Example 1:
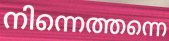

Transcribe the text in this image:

നിന്നെത്തന്നെ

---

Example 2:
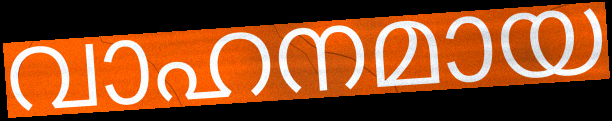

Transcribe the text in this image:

വാഹനമായ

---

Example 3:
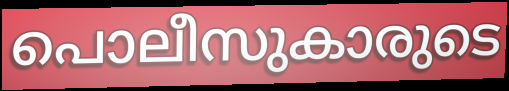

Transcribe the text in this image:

പൊലീസുകാരുടെ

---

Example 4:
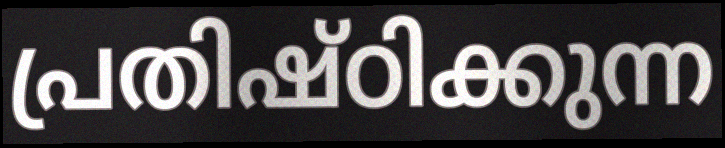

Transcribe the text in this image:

പ്രതിഷ്ഠിക്കുന്ന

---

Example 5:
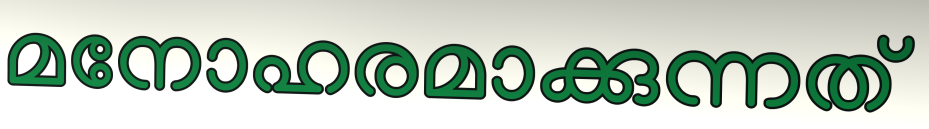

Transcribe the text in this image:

മനോഹരമാക്കുന്നത്